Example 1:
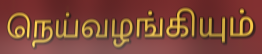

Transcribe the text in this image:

நெய்வழங்கியும்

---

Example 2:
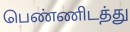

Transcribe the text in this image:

பெண்ணிடத்து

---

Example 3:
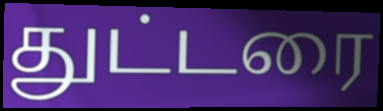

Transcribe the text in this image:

துட்டரை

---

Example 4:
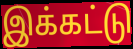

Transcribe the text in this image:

இக்கட்டு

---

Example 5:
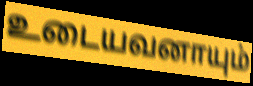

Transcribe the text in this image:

உடையவனாயும்